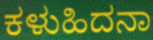
ಕಳುಹಿದನಾ